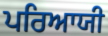
ਪਰਿਆਯੀ